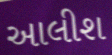
આલીશ